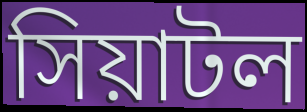
সিয়াটল